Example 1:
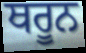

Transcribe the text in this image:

ਥਰੂਨ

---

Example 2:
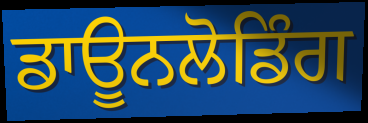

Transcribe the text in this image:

ਡਾਊਨਲੋਡਿੰਗ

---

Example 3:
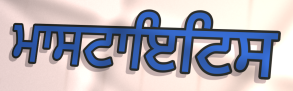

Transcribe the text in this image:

ਮਾਸਟਾਇਟਿਸ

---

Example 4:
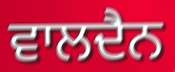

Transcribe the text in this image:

ਵਾਲਦੈਨ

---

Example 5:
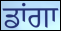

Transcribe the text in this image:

ਡਾਂਗਾ